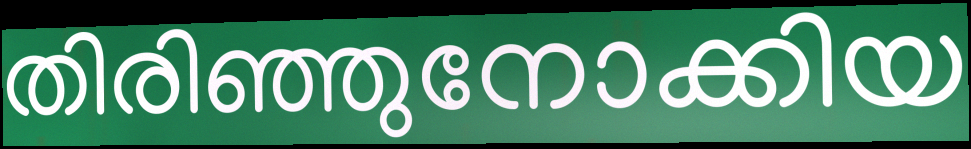
തിരിഞ്ഞുനോക്കിയ